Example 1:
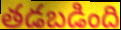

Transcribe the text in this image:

తడబడింది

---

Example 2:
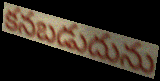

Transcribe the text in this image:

కనబడుదును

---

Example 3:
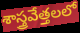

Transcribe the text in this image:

శాస్త్రవేత్తలలో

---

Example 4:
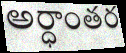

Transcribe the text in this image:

అర్ధాంతర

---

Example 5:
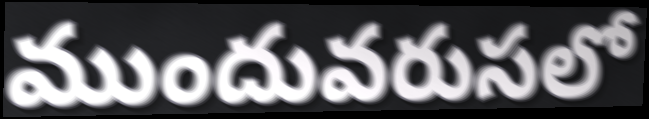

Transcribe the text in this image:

ముందువరుసలో